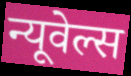
न्यूवेल्स